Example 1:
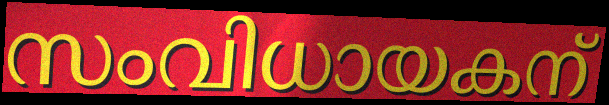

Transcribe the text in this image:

സംവിധായകന്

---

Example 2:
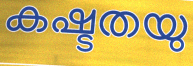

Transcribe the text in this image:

കഷ്ടതയു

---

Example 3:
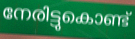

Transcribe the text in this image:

നേരിട്ടുകൊണ്ട്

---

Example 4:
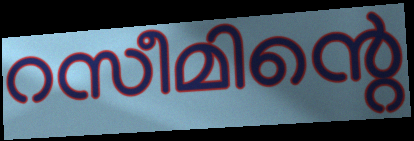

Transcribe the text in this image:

റസീമിന്റെ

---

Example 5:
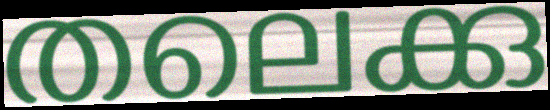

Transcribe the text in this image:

തലെക്കു